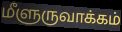
மீளுருவாக்கம்